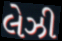
લેઝી